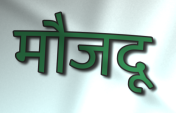
मौजदू